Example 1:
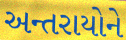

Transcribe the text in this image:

અન્તરાયોને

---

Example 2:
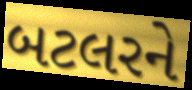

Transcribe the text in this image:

બટલરને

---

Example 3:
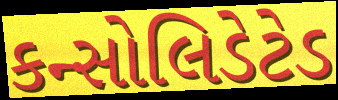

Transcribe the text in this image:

કન્સોલિડેટેડ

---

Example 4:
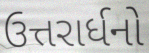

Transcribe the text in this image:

ઉત્તરાર્ધનો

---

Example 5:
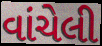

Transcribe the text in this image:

વાંચેલી